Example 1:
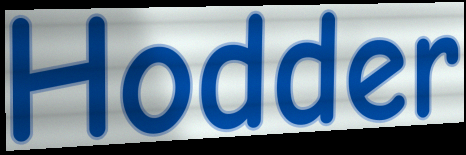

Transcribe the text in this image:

Hodder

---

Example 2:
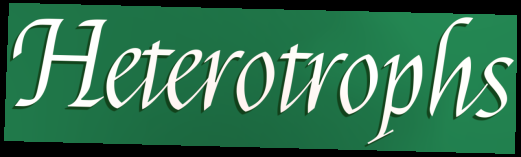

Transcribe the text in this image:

Heterotrophs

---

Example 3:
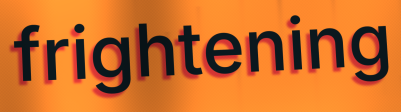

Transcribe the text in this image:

frightening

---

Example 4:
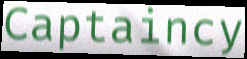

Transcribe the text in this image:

Captaincy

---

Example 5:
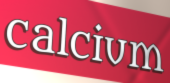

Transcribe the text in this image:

calcium